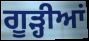
ਗੂੜ੍ਹੀਆਂ